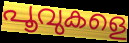
പൂവുകളെ